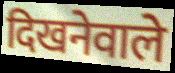
दिखनेवाले